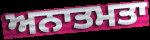
ਅਨਾਤਮਤਾ